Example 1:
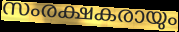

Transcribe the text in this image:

സംരക്ഷകരായും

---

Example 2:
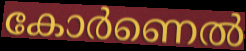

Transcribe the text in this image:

കോർണെൽ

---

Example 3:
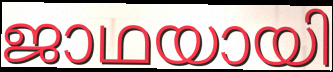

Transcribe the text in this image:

ജാഥയായി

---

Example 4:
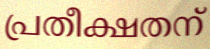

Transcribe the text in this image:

പ്രതീക്ഷതന്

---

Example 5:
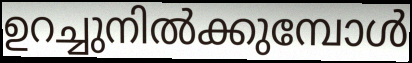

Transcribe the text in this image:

ഉറച്ചുനിൽക്കുമ്പോൾ